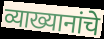
व्याख्यानांचे